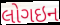
લોગઇન